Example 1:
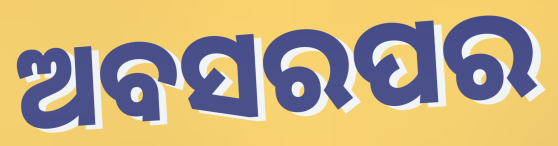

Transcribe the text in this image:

ଅବସରପର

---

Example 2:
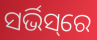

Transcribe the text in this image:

ସର୍ଭିସ୍‌ରେ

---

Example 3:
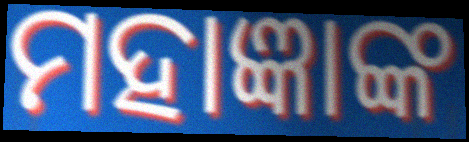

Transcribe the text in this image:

ମହାଜ୍ଞାଙ୍କ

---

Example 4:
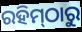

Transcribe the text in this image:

ରହିମ୍‌ଠାରୁ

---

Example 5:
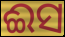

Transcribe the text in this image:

ଈସ